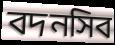
বদনসিব